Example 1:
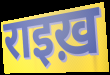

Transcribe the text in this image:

राइख़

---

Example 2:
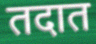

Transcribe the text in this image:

तदात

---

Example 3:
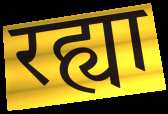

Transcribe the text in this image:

रह्या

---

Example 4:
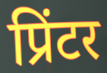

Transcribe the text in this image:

प्रिंटर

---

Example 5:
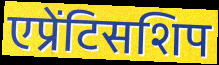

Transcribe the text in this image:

एप्रेंटिसशिप